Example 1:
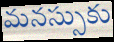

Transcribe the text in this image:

మనస్సుకు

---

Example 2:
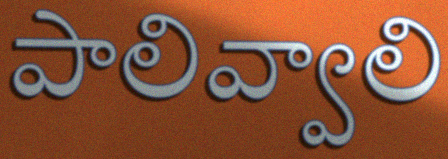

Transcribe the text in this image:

పాలివ్వాలి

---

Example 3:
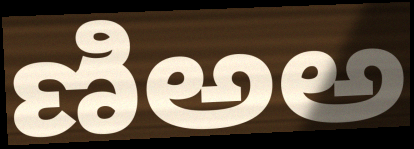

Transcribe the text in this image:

ణిఅఅ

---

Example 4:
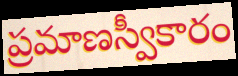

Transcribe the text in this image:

ప్రమాణస్వీకారం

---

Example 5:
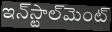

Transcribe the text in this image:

ఇన్‌స్టాల్‌మెంట్